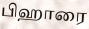
பிஹாரை